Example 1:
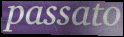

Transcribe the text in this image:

passato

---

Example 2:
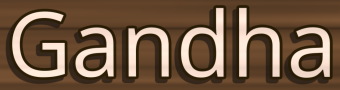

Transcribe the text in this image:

Gandha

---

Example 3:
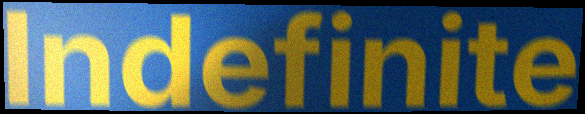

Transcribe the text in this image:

Indefinite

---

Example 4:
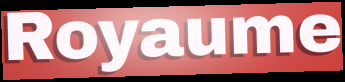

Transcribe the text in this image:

Royaume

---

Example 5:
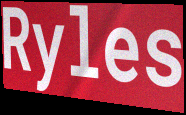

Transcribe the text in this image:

Ryles